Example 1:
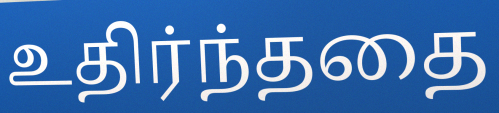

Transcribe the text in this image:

உதிர்ந்ததை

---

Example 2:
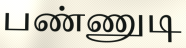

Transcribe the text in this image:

பண்ணுடி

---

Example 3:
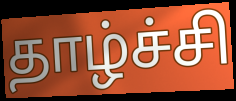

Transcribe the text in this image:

தாழ்ச்சி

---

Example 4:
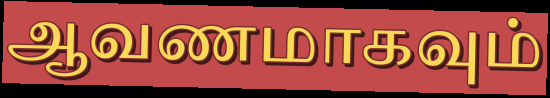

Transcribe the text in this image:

ஆவணமாகவும்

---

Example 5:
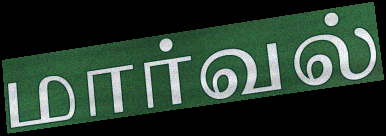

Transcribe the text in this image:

மார்வல்